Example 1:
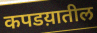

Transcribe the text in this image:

कपडय़ातील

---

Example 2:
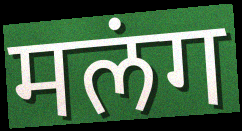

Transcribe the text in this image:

मलंग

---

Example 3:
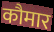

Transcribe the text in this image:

कौमार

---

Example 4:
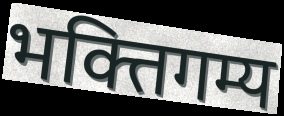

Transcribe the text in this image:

भक्तिगम्य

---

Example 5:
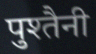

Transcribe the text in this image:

पुश्तैनी